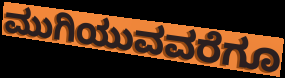
ಮುಗಿಯುವವರೆಗೂ